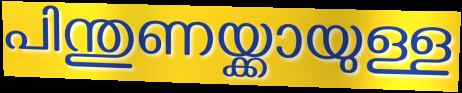
പിന്തുണയ്ക്കായുള്ള